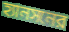
হ্যানসনের